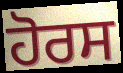
ਹੋਰਸ